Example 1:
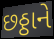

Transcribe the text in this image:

છઠ્ઠાને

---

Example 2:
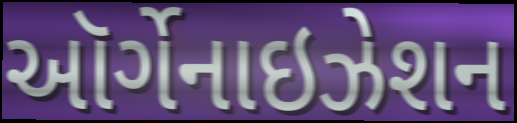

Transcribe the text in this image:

ઑર્ગેનાઇઝેશન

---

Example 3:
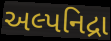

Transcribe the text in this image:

અલ્પનિદ્રા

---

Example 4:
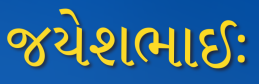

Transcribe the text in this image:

જયેશભાઈઃ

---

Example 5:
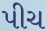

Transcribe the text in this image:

પીચ